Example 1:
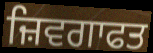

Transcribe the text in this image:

ਜ਼ਿਵਗਾਫਤ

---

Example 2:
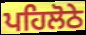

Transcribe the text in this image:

ਪਹਿਲੋਠੇ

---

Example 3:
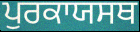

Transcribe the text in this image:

ਪੁਰਕਾਯਸਥ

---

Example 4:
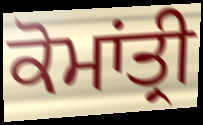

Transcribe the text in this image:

ਕੋਮਾਂਤ੍ਰੀ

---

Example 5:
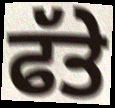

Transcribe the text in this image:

ਫੱਤੇ